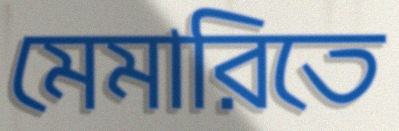
মেমারিতে